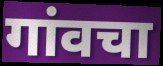
गांवचा